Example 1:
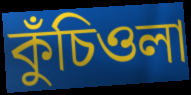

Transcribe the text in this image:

কুঁচিওলা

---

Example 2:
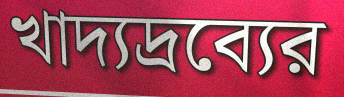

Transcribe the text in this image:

খাদ্যদ্রব্যের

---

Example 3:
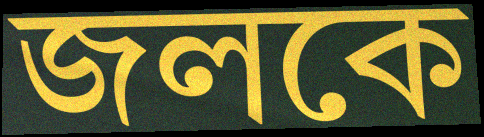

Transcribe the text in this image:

জলকে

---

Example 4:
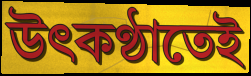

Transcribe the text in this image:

উৎকণ্ঠাতেই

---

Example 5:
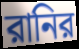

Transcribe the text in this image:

রানির